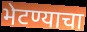
भेटण्याचा